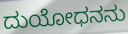
ದುಯೋಧನನು